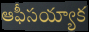
ఆఫీసయ్యాక